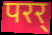
परर्